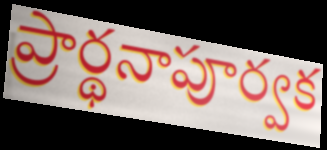
ప్రార్థనాపూర్వక